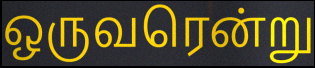
ஒருவரென்று